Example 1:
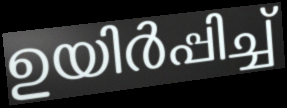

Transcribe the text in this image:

ഉയിർപ്പിച്ച്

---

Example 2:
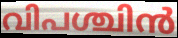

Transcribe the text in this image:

വിപശ്ചിൻ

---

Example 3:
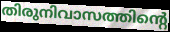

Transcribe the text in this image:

തിരുനിവാസത്തിന്റെ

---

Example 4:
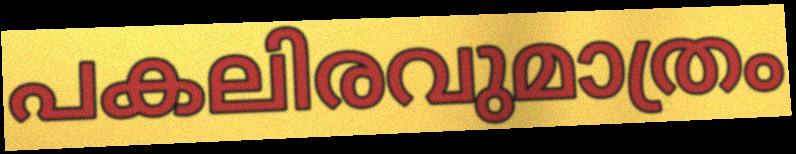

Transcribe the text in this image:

പകലിരവുമാത്രം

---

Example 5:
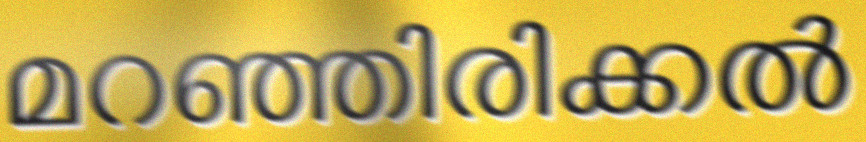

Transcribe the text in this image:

മറഞ്ഞിരിക്കൽ